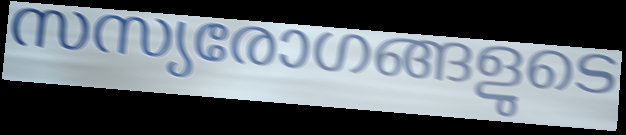
സസ്യരോഗങ്ങളുടെ